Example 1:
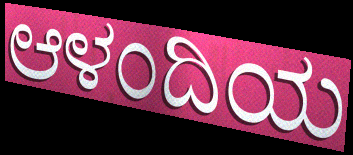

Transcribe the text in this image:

ಆಳಂದಿಯ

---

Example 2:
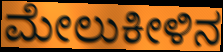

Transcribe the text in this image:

ಮೇಲುಕೀಳಿನ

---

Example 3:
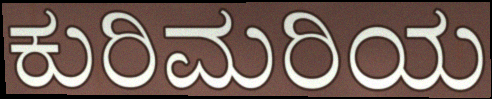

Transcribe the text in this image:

ಕುರಿಮರಿಯ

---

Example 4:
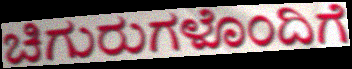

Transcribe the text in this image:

ಚಿಗುರುಗಳೊಂದಿಗೆ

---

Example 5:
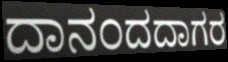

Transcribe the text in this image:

ದಾನಂದದಾಗರ